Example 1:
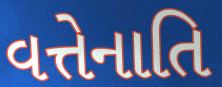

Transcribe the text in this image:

વત્તેનાતિ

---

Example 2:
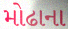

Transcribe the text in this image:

મોઢાના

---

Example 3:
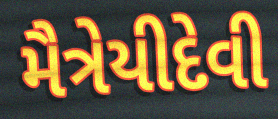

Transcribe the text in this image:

મૈત્રેયીદેવી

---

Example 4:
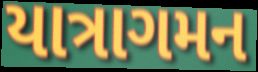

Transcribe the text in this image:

યાત્રાગમન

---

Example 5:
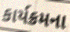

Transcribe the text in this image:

કાર્યક્રમના